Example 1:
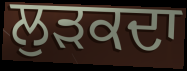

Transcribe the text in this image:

ਲੁੜਕਦਾ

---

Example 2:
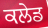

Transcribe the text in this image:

ਕਲੇਡ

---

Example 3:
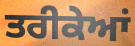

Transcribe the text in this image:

ਤਰੀਕੇਆਂ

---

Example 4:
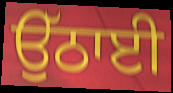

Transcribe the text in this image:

ਉੱਠਾਈ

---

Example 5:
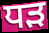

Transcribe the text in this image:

ਧੜ